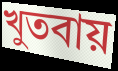
খুতবায়